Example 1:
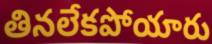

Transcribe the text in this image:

తినలేకపోయారు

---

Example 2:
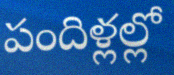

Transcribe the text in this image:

పందిళ్లల్లో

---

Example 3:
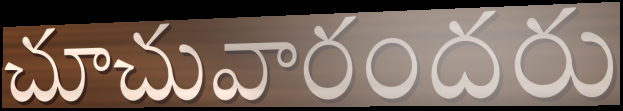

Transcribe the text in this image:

చూచువారందరు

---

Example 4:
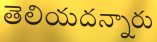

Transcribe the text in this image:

తెలియదన్నారు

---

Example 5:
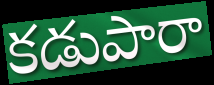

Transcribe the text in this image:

కడుపారా